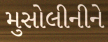
મુસોલીનીને